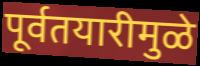
पूर्वतयारीमुळे